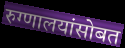
रुग्णालयांसोबत